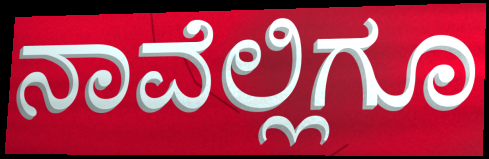
ನಾವೆಲ್ಲಿಗೂ